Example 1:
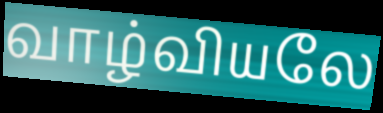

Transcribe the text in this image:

வாழ்வியலே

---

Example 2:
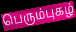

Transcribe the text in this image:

பெரும்புகழ்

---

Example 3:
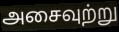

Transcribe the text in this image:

அசைவுற்று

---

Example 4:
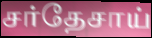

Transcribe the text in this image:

சர்தேசாய்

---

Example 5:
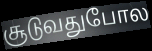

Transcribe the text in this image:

சூடுவதுபோல